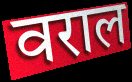
वराल